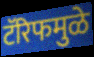
टॅरिफमुळे